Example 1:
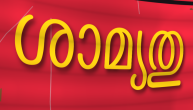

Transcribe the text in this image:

ശാമ്യതു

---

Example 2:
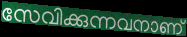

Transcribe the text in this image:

സേവിക്കുന്നവനാണ്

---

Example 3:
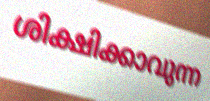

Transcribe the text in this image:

ശിക്ഷിക്കാവുന്ന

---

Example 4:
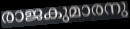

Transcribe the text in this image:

രാജകുമാരനു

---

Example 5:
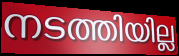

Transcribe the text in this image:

നടത്തിയില്ല